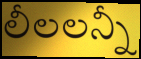
లీలలన్నీ